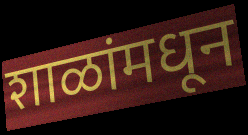
शाळांमधून